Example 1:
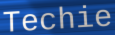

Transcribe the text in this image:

Techie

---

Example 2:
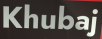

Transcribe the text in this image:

Khubaj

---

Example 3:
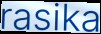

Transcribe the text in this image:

rasika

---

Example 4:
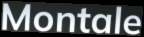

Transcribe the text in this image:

Montale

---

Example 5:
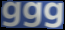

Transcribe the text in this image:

ggg